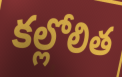
కల్లోలిత